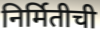
निर्मितीची